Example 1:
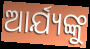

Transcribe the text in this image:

ଆର୍ଯ୍ୟଙ୍କୁ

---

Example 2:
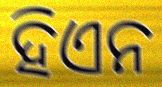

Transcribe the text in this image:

ହିଏନ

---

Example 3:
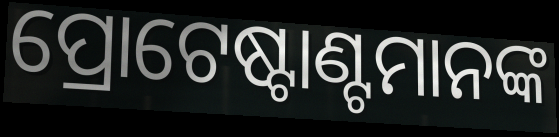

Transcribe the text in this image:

ପ୍ରୋଟେଷ୍ଟାଣ୍ଟମାନଙ୍କ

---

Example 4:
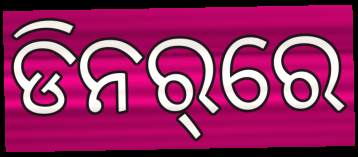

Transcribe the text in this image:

ଡିନର୍‌ରେ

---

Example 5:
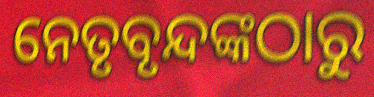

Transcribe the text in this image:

ନେତୃବୃନ୍ଦଙ୍କଠାରୁ